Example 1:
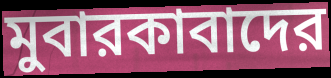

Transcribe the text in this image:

মুবারকাবাদের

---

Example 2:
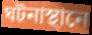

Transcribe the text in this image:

ঘটনাস্থানে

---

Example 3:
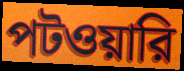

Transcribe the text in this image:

পটওয়ারি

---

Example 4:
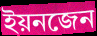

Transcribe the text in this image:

ইয়নজেন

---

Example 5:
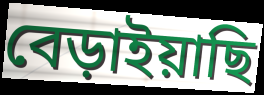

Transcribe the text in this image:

বেড়াইয়াছি